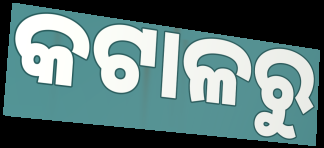
କଟାଳରୁ